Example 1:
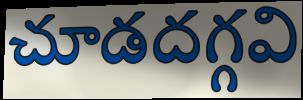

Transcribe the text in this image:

చూడదగ్గవి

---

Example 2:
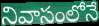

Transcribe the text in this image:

నివాసంలోనే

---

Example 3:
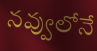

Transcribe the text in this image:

నవ్వులోనే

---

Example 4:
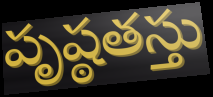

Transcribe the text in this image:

పృష్ఠతస్తు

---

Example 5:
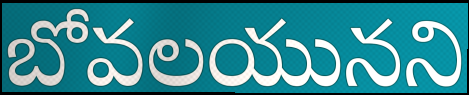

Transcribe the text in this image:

బోవలయునని